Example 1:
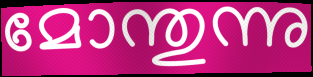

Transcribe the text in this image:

മോന്തുന്നു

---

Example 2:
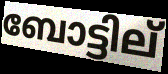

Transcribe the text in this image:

ബോട്ടില്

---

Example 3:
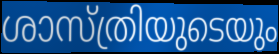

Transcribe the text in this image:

ശാസ്ത്രിയുടെയും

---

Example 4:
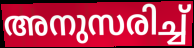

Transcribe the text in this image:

അനുസരിച്ച്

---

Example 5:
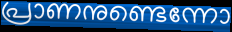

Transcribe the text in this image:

പ്രാണനുണ്ടെന്നോ